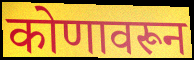
कोणावरून